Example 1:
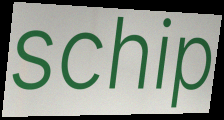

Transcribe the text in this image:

schip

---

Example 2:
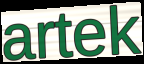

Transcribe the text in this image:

artek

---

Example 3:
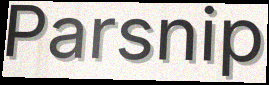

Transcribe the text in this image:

Parsnip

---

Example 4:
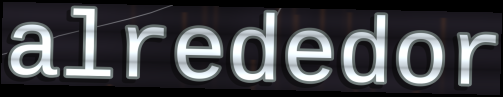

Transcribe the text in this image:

alrededor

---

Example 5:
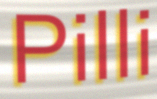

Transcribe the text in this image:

Pilli